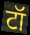
टॉ